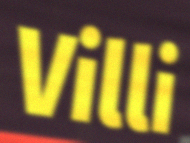
Villi